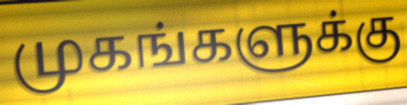
முகங்களுக்கு